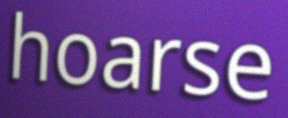
hoarse